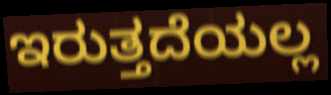
ಇರುತ್ತದೆಯಲ್ಲ